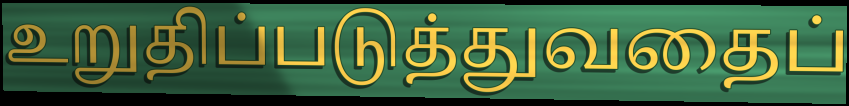
உறுதிப்படுத்துவதைப்